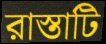
রাস্তাটি